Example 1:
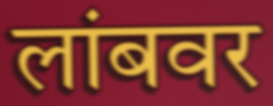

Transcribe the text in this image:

लांबवर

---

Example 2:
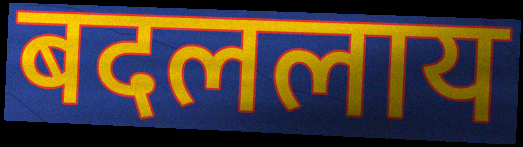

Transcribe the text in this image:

बदललाय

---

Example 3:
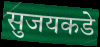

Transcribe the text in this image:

सुजयकडे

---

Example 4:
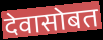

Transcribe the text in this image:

देवासोबत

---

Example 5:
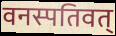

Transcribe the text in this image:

वनस्पतिवत्